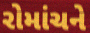
રોમાંચને